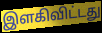
இளகிவிட்டது